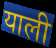
याली